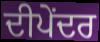
ਦੀਪੇਂਦਰ